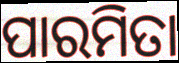
ପାରମିତା